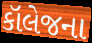
કૉલેજના